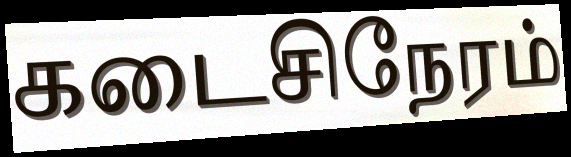
கடைசிநேரம்